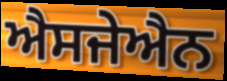
ਐਸਜੇਐਨ